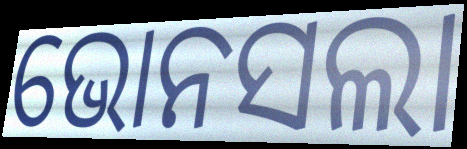
ଭୋନସଲା